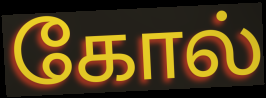
கோல்